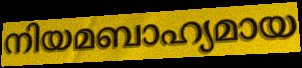
നിയമബാഹ്യമായ